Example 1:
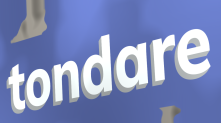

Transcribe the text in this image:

tondare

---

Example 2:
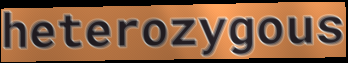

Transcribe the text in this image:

heterozygous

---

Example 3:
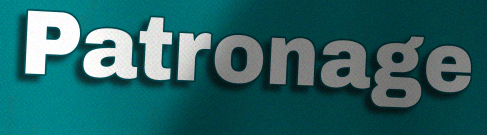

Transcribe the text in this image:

Patronage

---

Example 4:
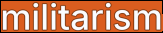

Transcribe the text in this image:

militarism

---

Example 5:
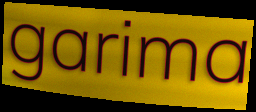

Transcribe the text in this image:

garima